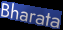
Bharata